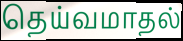
தெய்வமாதல்